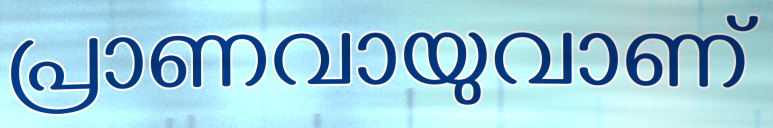
പ്രാണവായുവാണ്